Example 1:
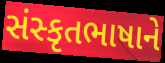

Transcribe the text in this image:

સંસ્કૃતભાષાને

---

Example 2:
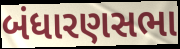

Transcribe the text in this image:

બંધારણસભા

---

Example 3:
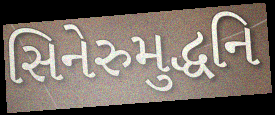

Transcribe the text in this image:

સિનેરુમુદ્ધનિ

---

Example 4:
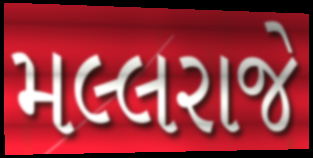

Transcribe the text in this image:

મલ્લરાજે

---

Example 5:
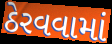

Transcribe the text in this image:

ઠેરવવામાં